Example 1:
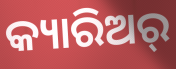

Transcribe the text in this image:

କ୍ୟାରିଅର୍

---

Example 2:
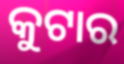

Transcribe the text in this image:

କୁଟାର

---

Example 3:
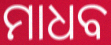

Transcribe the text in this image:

ମାଧବ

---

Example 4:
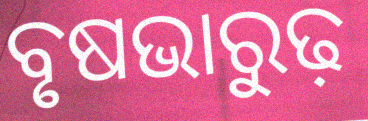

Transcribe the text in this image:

ବୃଷଭାରୁଢ଼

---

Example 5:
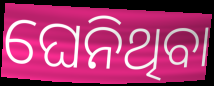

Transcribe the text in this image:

ଘେନିଥିବା